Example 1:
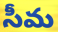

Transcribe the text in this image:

సీమ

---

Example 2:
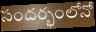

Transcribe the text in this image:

సందర్భంలోనో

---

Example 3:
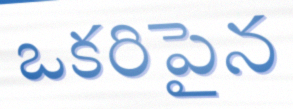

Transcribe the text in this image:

ఒకరిపైన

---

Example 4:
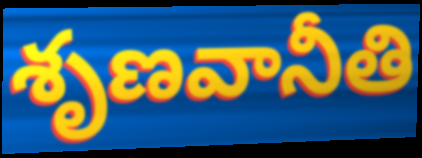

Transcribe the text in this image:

శృణవానీతి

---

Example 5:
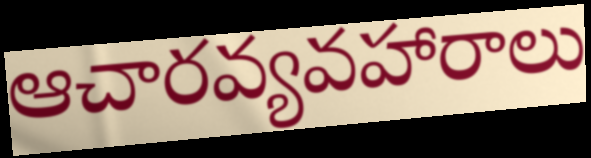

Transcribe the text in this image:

ఆచారవ్యవహారాలు